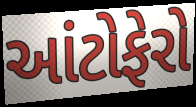
આંટોફેરો